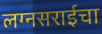
लग्नसराईचा